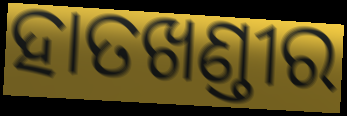
ହାତଖଣ୍ଡୀର